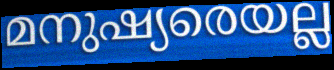
മനുഷ്യരെയല്ല